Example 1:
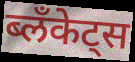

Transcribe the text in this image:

ब्लॅंकेट्स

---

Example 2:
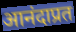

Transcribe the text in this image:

आनंदाप्रत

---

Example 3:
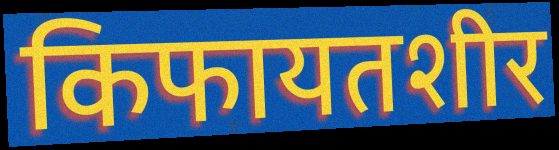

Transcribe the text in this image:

किफायतशीर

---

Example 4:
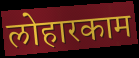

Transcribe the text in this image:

लोहारकाम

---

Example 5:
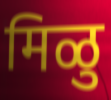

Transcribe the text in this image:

मिळु